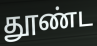
தூண்ட